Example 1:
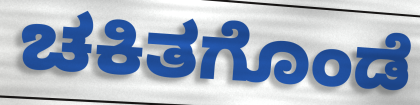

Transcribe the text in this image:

ಚಕಿತಗೊಂಡೆ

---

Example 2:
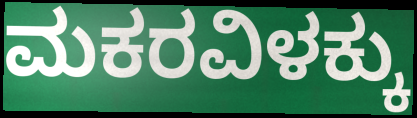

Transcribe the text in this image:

ಮಕರವಿಳಕ್ಕು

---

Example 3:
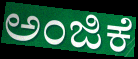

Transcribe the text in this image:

ಅಂಜಿಕೆ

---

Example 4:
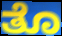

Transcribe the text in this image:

ತೊ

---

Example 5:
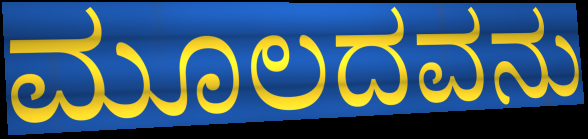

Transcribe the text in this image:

ಮೂಲದವನು